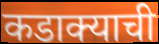
कडाक्याची